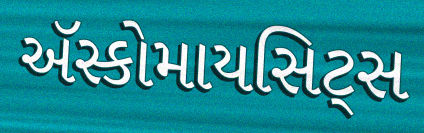
ઍસ્કોમાયસિટ્સ